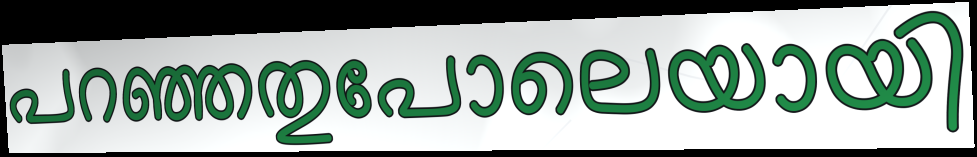
പറഞ്ഞതുപോലെയായി